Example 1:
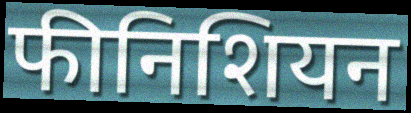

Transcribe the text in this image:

फीनिशियन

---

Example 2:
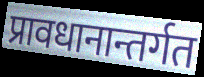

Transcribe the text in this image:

प्रावधानान्तर्गत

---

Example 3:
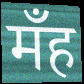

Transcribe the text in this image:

मँह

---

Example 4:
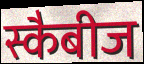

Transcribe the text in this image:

स्कैबीज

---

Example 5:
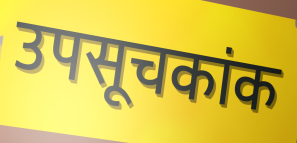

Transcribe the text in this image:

उपसूचकांक